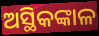
ଅସ୍ଥିକଙ୍କାଳ